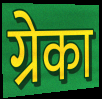
ग्रेका